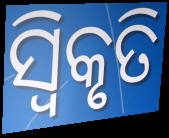
ସ୍ଵିକୃତି